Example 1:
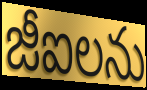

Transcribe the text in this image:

జీఐలను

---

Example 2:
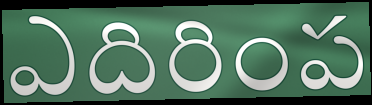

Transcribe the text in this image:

ఎదిరింప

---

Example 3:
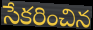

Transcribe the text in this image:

సేకరించిన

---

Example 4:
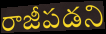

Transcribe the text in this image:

రాజీపడని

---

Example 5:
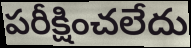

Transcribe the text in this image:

పరీక్షించలేదు